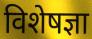
विशेषज्ञा